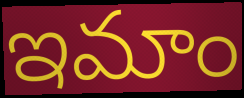
ఇమాం